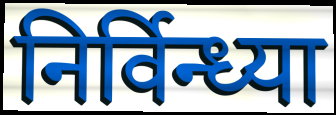
निर्विन्ध्या